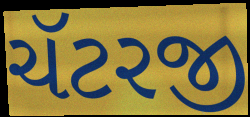
ચૅટરજી